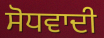
ਸੋਧਵਾਦੀ